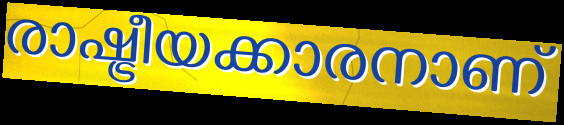
രാഷ്ട്രീയക്കാരനാണ്